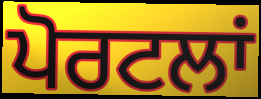
ਪੋਰਟਲਾਂ